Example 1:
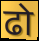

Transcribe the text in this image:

ढो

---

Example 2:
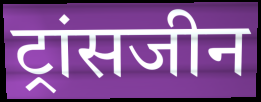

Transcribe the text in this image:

ट्रांसजीन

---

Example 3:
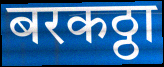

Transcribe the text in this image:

बरकठ्ठा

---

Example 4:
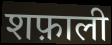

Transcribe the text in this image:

शफ़ाली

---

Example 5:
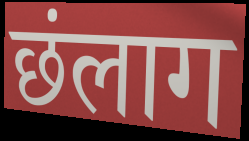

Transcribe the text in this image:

छंलाग